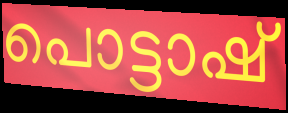
പൊട്ടാഷ്